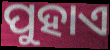
ପୁହାଏ